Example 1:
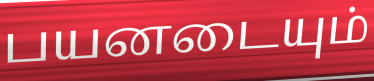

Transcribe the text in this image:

பயனடையும்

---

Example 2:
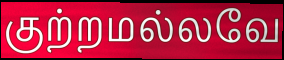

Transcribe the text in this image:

குற்றமல்லவே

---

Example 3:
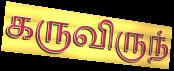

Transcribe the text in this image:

கருவிருந்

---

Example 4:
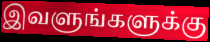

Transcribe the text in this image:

இவளுங்களுக்கு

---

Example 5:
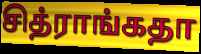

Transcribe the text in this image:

சித்ராங்கதா